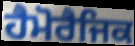
ਹੈਮੋਰੈਜਿਕ